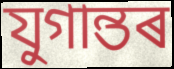
যুগান্তৰ